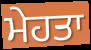
ਮੇਹਤਾ